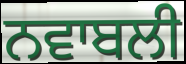
ਨਵਾਬਲੀ